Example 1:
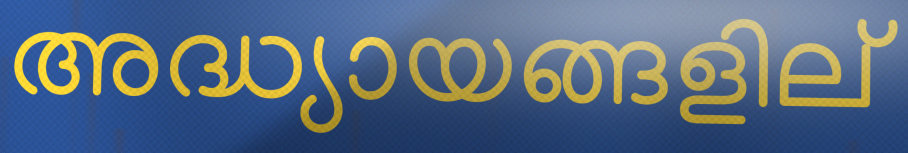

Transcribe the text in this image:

അദ്ധ്യായങ്ങളില്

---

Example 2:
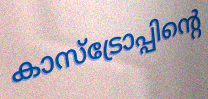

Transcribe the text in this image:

കാസ്ട്രോപ്പിന്റെ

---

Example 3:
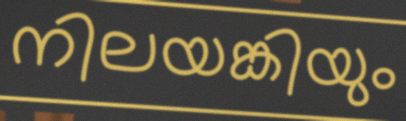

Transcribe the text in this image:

നിലയങ്കിയും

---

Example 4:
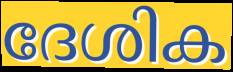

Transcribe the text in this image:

ദേശിക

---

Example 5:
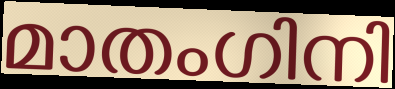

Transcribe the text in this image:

മാതംഗിനി